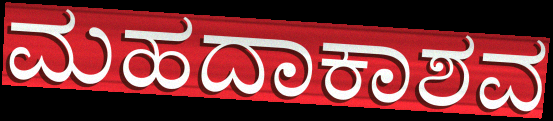
ಮಹದಾಕಾಶವ